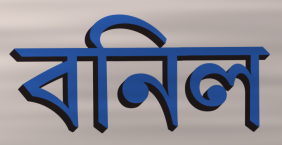
বনিল